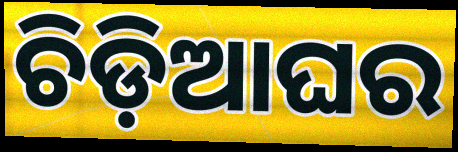
ଚିଡ଼ିଆଘର